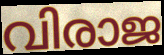
വിരാജ